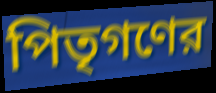
পিতৃগণের